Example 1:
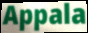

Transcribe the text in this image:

Appala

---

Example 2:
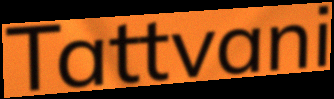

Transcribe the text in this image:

Tattvani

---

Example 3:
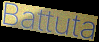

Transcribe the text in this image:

Battuta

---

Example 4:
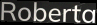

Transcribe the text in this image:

Roberta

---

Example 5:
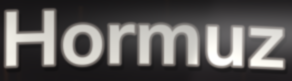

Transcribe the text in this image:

Hormuz